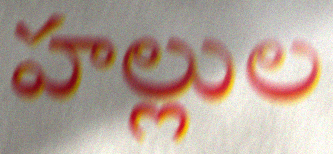
హల్లుల